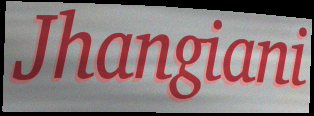
Jhangiani